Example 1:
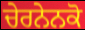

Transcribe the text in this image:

ਚੇਰਨੇਨਕੋ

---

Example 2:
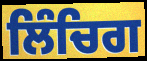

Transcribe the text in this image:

ਲਿੰਚਿਗ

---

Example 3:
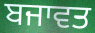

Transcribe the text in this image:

ਬਜਾਵਤ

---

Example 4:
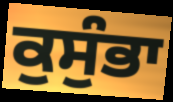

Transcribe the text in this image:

ਕੁਸੁੰਭਾ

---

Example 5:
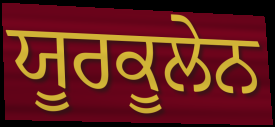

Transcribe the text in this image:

ਯੂਰਕੂਲੇਨ